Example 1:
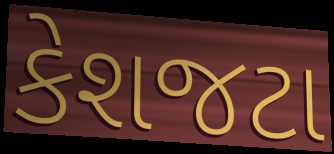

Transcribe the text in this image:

કેશજટા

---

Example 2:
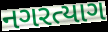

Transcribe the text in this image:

નગરત્યાગ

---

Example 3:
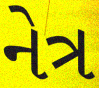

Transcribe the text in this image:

નેત્ર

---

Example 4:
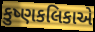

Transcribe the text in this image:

કુષ્ણકલિકાએ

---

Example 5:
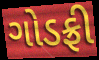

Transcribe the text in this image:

ગોડફ્રી